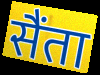
सैंता